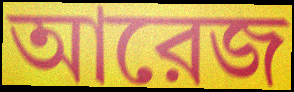
আরেজ